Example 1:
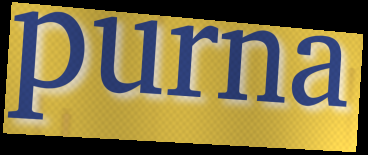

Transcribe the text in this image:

purna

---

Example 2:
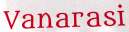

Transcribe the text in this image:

Vanarasi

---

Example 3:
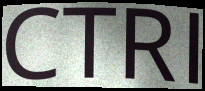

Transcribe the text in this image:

CTRI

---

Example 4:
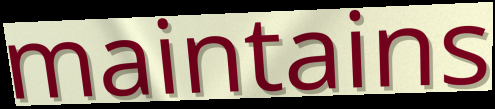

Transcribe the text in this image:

maintains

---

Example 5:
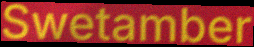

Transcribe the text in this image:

Swetamber